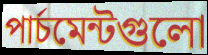
পার্চমেন্টগুলো